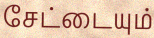
சேட்டையும்